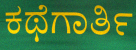
ಕಥೆಗಾರ್ತಿ